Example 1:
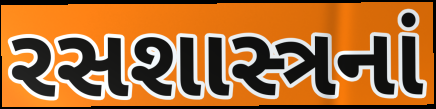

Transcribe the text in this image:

રસશાસ્ત્રનાં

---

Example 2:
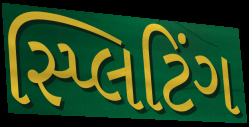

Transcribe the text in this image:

સ્પ્લિટિંગ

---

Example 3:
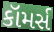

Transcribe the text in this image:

કૉમર્સ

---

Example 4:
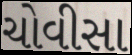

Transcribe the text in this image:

ચોવીસા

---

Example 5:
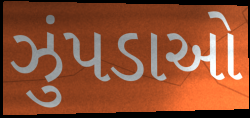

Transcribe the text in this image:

ઝુંપડાઓ